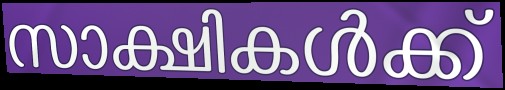
സാക്ഷികൾക്ക്